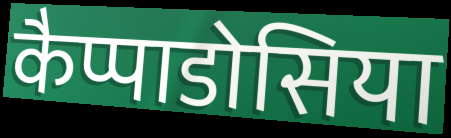
कैप्पाडोसिया